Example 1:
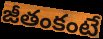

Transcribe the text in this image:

జీతంకంటే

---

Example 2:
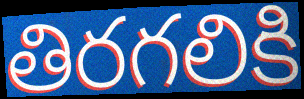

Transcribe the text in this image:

తిరగలికి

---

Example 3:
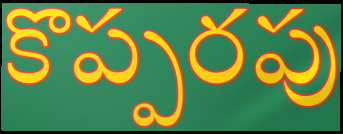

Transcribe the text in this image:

కొప్పరపు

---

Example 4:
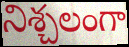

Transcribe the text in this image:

నిశ్చలంగా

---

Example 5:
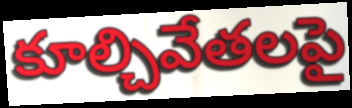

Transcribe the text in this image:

కూల్చివేతలపై